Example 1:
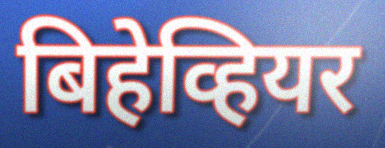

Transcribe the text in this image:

बिहेव्हियर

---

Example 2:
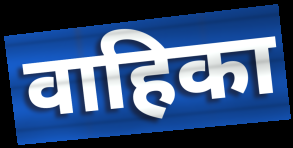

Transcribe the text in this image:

वाहिका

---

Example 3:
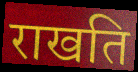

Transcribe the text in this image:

राखति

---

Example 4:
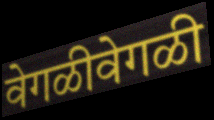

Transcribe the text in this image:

वेगळीवेगळी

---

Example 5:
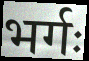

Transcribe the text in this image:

भर्गः